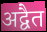
अद्वैत